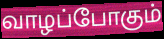
வாழப்போகும்